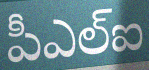
పీఎల్ఐ